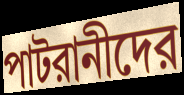
পাটরানীদের